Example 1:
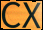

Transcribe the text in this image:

CX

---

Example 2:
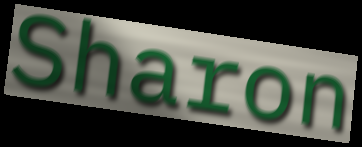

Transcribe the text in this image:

Sharon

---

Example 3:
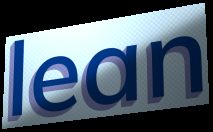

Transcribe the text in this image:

lean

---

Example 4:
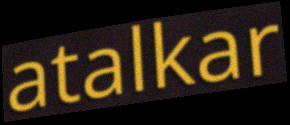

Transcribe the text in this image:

atalkar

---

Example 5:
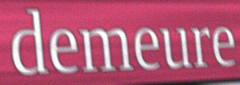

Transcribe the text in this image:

demeure